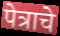
पेत्राचे